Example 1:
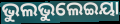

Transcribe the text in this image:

ଭୁଲଭୁଲେଇୟା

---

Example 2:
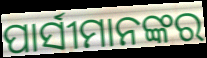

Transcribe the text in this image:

ପାର୍ସୀମାନଙ୍କର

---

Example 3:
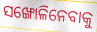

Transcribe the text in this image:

ସଙ୍ଖୋଳିନେବାକୁ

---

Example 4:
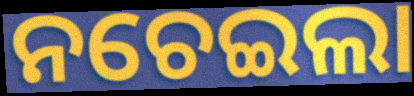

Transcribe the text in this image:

ନଚେଇଲା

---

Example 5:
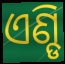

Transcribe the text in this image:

ଏଣ୍ଡି